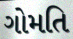
ગોમતિ